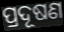
ପ୍ରଦୂଷଣ